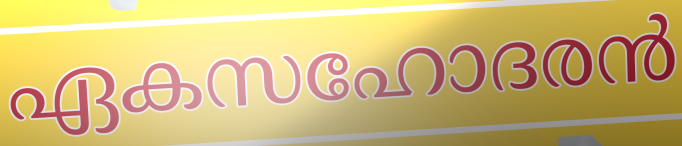
ഏകസഹോദരൻ